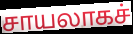
சாயலாகச்